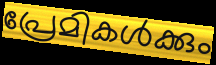
പ്രേമികൾക്കും